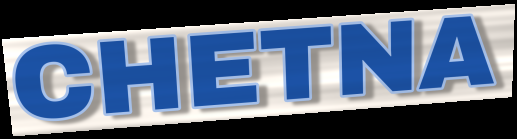
CHETNA